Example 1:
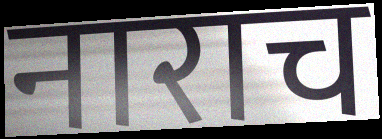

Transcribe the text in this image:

नाराच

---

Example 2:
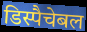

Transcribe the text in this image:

डिस्पैचेबल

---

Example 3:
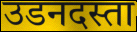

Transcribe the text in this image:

उडनदस्ता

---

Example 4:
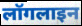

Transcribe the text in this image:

लॉगलाइन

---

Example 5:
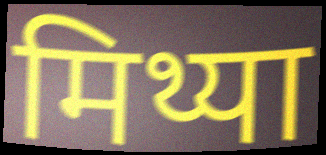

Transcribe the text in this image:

मिथ्‍या